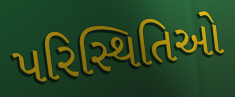
પરિસ્થિતિઓ